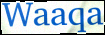
Waaqa